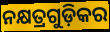
ନକ୍ଷତ୍ରଗୁଡ଼ିକର